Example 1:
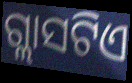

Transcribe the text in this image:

ଗ୍ଲାସଟିଏ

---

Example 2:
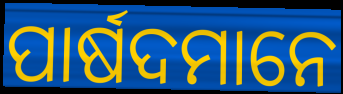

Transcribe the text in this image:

ପାର୍ଷଦମାନେ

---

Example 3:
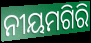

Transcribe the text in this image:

ନୀୟମଗିରି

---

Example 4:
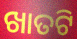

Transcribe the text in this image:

ଖାତଟି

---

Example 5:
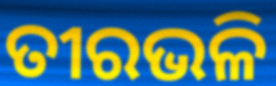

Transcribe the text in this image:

ତୀରଭଳି